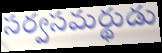
సర్వసమర్థుడు